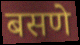
बसणे